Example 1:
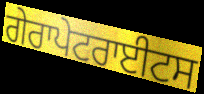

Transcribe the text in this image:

ਗੇਰਾਪੇਟਰਾਈਟਸ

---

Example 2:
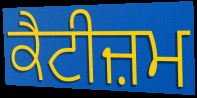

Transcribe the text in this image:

ਕੈਟੀਜ਼ਮ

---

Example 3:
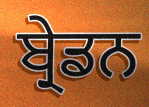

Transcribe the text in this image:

ਬ੍ਰੇਡਨ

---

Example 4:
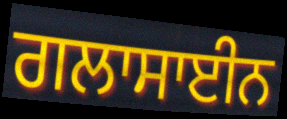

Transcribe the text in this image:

ਗਲਾਸਾਈਨ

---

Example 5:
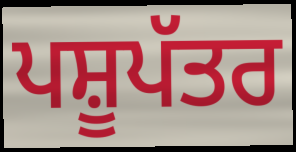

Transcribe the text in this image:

ਪਸ਼ੂਪੱਤਰ